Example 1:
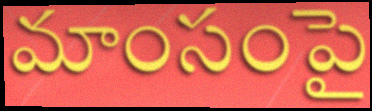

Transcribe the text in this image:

మాంసంపై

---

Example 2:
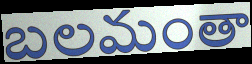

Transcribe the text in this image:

బలమంతా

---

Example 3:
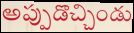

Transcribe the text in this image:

అప్పుడొచ్చిండు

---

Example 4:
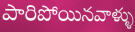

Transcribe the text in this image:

పారిపోయినవాళ్ళు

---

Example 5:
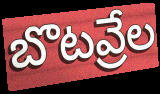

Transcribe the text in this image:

బొటవ్రేల